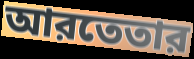
আরতেতার